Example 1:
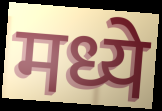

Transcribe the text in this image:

मध्ये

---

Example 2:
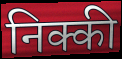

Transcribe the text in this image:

निक्की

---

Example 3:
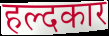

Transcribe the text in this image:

हल्दकार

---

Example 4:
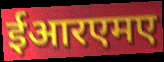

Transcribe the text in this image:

ईआरएमए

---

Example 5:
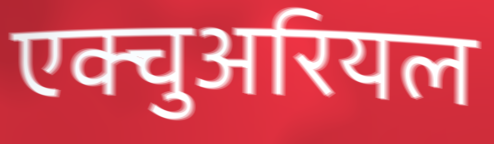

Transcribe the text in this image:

एक्चुअरियल